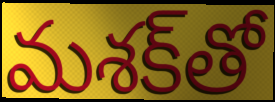
మశక్‌తో